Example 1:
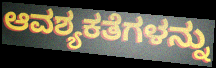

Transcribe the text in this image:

ಆವಶ್ಯಕತೆಗಳನ್ನು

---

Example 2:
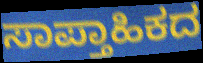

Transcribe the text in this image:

ಸಾಪ್ತಾಹಿಕದ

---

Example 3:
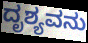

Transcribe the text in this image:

ದೃಶ್ಯವನು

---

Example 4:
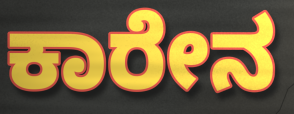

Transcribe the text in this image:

ಕಾರೇನ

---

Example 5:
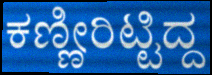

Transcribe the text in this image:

ಕಣ್ಣೀರಿಟ್ಟಿದ್ದ